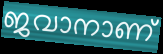
ജവാനാണ്